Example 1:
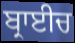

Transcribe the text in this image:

ਬ੍ਰਾਈਚ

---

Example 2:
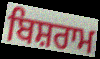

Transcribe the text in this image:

ਬਿਸ਼ਰਾਮ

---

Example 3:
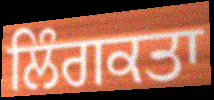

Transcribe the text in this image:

ਲਿੰਗਕਤਾ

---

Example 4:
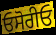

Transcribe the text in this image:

ਓਸੋਰੀਓ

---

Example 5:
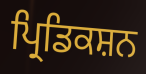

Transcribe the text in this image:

ਪ੍ਰਿਡਿਕਸ਼ਨ